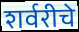
शर्वरीचे